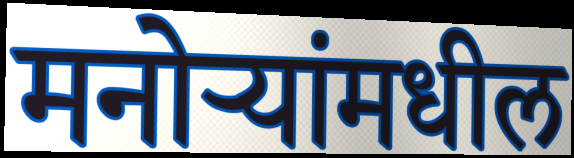
मनोऱ्यांमधील